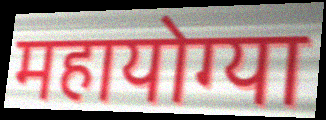
महायोग्या